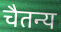
चैतन्य